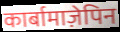
कार्बामाज़ेपिन